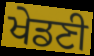
ਖੇਡਣੀ